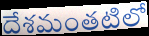
దేశమంతటిలో